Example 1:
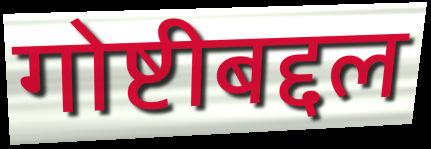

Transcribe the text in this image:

गोष्टीबद्दल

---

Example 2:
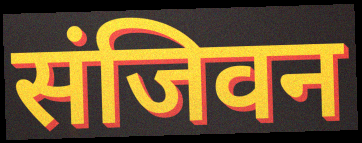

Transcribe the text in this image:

संजिवन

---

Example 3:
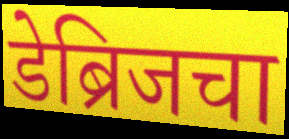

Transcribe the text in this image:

डेब्रिजचा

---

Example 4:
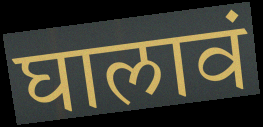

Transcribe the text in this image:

घालावं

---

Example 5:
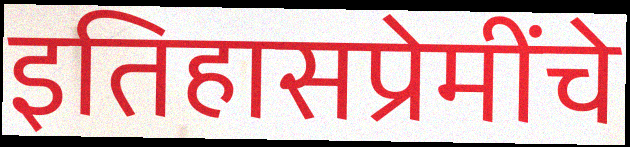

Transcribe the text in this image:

इतिहासप्रेमींचे